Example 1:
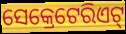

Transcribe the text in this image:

ସେକ୍ରେଟେରିଏଟ୍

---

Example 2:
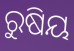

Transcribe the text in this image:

ରୁଷିୟ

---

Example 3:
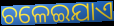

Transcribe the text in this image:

ଚଳେଇଯାଏ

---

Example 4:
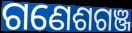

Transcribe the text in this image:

ଗଣେଶଗଞ୍ଜ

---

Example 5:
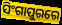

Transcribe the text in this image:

ସିଂଗାପୁରରେ